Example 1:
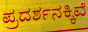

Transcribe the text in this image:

ಪ್ರದರ್ಶನಕ್ಕಿವೆ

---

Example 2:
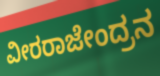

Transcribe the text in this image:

ವೀರರಾಜೇಂದ್ರನ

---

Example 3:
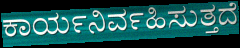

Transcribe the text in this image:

ಕಾರ್ಯನಿರ್ವಹಿಸುತ್ತದೆ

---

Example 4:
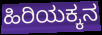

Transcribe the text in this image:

ಹಿರಿಯಕ್ಕನ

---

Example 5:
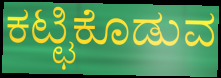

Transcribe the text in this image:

ಕಟ್ಟಿಕೊಡುವ